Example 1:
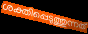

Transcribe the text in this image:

ശക്തിപ്പെടുത്തുന്നത്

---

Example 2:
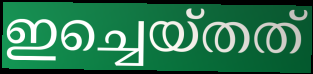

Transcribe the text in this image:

ഇച്ചെയ്തത്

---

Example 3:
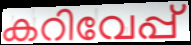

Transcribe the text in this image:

കറിവേപ്പ്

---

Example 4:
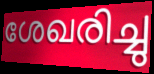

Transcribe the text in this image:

ശേഖരിച്ചു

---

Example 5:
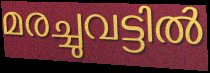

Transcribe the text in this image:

മരച്ചുവട്ടിൽ